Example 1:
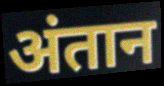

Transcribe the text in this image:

अंतान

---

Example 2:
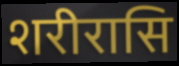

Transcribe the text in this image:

शरीरासि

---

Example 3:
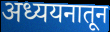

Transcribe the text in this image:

अध्ययनातून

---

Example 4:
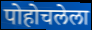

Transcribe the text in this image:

पोहोचलेला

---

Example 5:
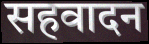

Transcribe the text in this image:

सहवादन